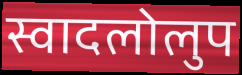
स्वादलोलुप